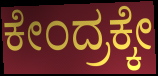
ಕೇಂದ್ರಕ್ಕೇ